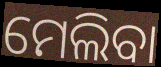
ମେଲିବା